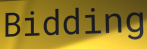
Bidding